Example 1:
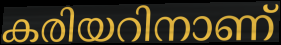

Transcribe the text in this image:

കരിയറിനാണ്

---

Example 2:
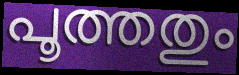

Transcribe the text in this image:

പൂത്തതും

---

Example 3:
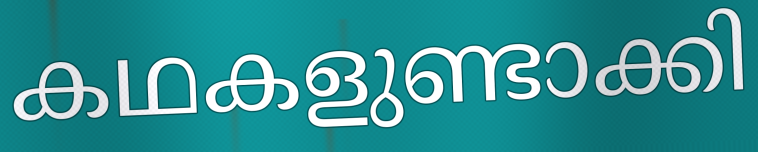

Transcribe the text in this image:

കഥകളുണ്ടാക്കി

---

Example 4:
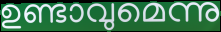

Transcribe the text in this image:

ഉണ്ടാവുമെന്നു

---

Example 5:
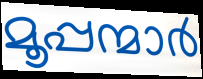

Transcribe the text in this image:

മൂപ്പന്മാർ